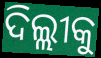
ଦିଲ୍ଲୀକୁ